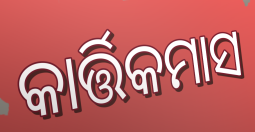
କାର୍ତ୍ତିକମାସ